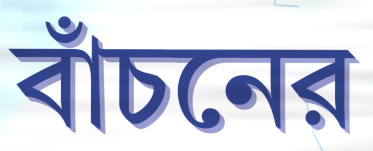
বাঁচনের